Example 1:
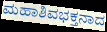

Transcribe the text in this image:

ಮಹಾಶಿವಭಕ್ತನಾದ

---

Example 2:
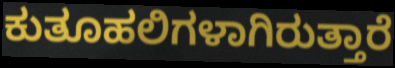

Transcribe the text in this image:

ಕುತೂಹಲಿಗಳಾಗಿರುತ್ತಾರೆ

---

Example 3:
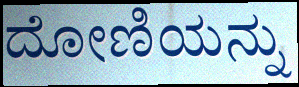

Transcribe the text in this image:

ದೋಣಿಯನ್ನು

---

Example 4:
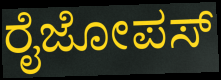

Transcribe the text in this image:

ರೈಜೋಪಸ್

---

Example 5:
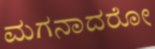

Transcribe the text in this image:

ಮಗನಾದರೋ